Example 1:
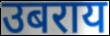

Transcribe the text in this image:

उबराय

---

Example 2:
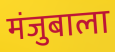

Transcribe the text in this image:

मंजुबाला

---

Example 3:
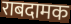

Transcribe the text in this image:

राबदामक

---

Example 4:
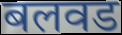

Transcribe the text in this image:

बलवड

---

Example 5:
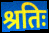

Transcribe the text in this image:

श्रतिः